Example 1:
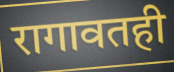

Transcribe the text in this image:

रागावतही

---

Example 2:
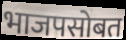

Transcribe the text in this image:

भाजपसोबत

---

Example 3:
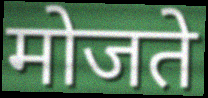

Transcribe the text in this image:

मोजते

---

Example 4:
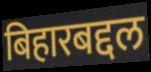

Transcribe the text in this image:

बिहारबद्दल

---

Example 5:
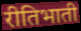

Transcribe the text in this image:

रीतिभाती